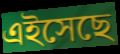
এইসেছে